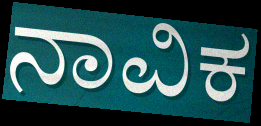
ನಾವಿಕ